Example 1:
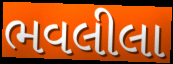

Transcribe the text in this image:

ભવલીલા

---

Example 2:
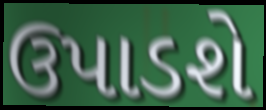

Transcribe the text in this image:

ઉપાડશે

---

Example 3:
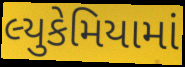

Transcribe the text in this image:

લ્યુકેમિયામાં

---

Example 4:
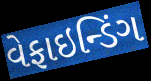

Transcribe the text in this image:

વેફાઇન્ડિંગ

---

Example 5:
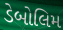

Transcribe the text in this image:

ડેબોલિમ